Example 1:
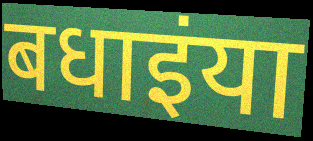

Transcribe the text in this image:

बधाइंया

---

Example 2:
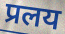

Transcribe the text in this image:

प्रलय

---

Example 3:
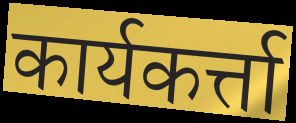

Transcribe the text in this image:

कार्यकर्त्ता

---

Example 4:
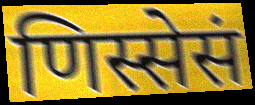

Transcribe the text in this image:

णिस्सेसं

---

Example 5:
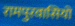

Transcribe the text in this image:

रामपुरवासियो